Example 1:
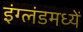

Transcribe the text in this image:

इंग्लंडमध्यें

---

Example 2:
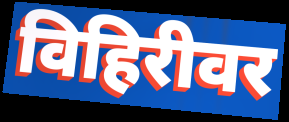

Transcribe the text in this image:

विहिरीवर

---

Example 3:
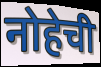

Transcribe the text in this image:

नोहेची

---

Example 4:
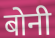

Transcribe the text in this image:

बोनी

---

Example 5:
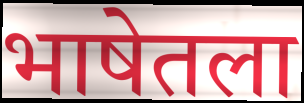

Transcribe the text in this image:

भाषेतला